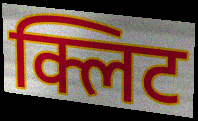
क्लिट